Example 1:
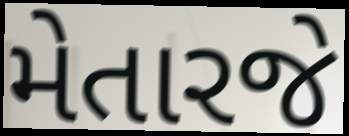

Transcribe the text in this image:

મેતારજે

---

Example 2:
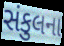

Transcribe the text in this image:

સંકુલના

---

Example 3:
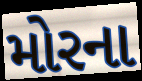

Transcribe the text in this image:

મોરના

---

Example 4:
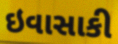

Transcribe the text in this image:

ઇવાસાકી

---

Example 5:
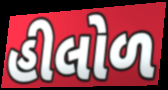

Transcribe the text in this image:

હીલોળ